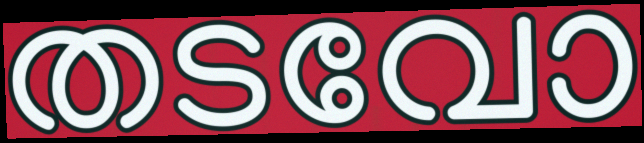
തടവോ